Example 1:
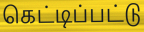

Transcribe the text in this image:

கெட்டிப்பட்டு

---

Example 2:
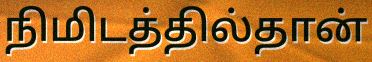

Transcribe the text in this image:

நிமிடத்தில்தான்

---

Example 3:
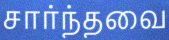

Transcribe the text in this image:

சார்ந்தவை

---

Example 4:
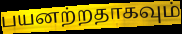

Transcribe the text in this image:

பயனற்றதாகவும்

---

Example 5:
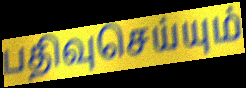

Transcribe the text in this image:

பதிவுசெய்யும்